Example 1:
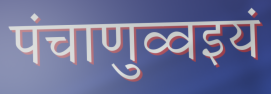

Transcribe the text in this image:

पंचाणुव्वइयं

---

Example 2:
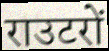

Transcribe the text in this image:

राउटरों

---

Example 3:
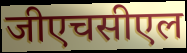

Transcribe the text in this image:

जीएचसीएल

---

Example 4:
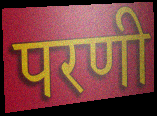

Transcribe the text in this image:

परणी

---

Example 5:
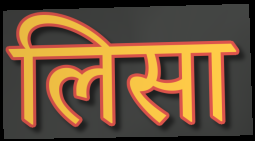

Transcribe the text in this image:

लिसा